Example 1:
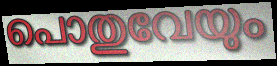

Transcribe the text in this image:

പൊതുവേയും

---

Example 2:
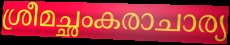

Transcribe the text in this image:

ശ്രീമച്ഛംകരാചാര്യ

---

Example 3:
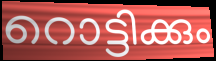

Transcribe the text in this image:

റൊട്ടിക്കും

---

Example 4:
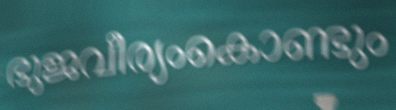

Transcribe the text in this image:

ഭുജവീര്യംകൊണ്ടും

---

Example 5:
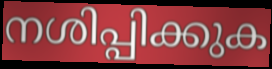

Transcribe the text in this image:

നശിപ്പിക്കുക